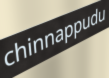
chinnappudu